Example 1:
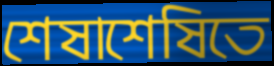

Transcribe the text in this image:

শেষাশেষিতে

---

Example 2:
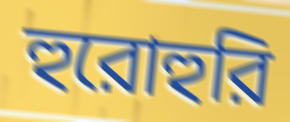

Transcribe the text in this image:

হুরোহুরি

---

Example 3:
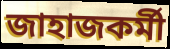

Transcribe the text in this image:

জাহাজকর্মী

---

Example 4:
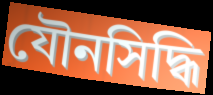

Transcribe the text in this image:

যৌনসিদ্ধি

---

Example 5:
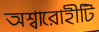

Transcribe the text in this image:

অশ্বারোহীটি